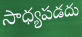
సాధ్యపడదు